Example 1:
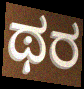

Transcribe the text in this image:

ಥರ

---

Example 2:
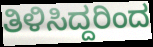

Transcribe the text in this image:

ತಿಳಿಸಿದ್ದರಿಂದ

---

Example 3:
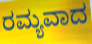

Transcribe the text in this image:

ರಮ್ಯವಾದ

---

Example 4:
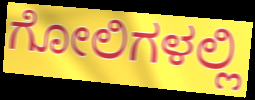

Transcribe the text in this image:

ಗೋಲಿಗಳಲ್ಲಿ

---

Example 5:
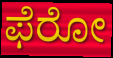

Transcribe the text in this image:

ಫೆರೋ